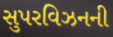
સુપરવિઝનની